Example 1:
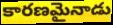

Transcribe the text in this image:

కారణమైనాడు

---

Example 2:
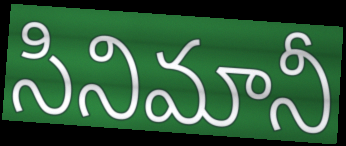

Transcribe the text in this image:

సినిమానీ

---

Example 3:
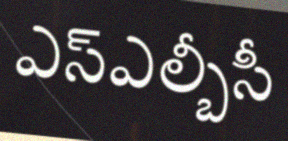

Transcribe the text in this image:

ఎస్ఎల్బీసీ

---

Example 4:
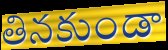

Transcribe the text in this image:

తినకుండా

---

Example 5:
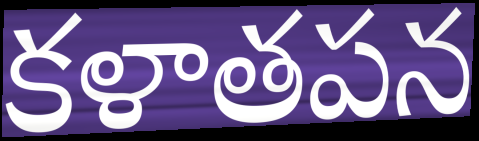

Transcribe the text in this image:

కళాతపన